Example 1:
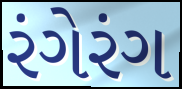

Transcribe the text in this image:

રંગેરંગ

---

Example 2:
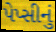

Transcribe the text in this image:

પેપ્સીનું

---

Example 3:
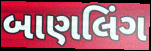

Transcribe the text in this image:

બાણલિંગ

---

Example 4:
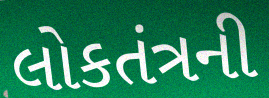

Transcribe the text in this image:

લોકતંત્રની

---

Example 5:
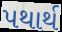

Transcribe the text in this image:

પથાર્થ